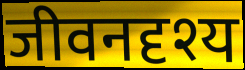
जीवनदृश्य